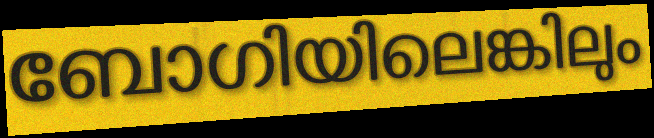
ബോഗിയിലെങ്കിലും